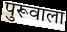
पुरूवाला